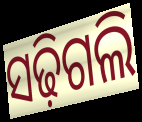
ସଢ଼ିଗଲି